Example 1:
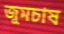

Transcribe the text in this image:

জুমচাষ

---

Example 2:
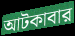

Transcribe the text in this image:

আটকাবার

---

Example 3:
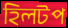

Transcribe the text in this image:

হিলটপ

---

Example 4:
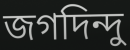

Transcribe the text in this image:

জগদিন্দু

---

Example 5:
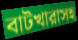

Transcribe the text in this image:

বাটখারাসহ